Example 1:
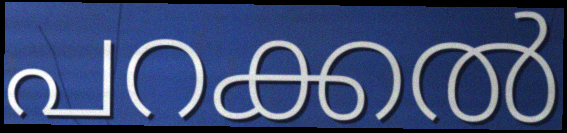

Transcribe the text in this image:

പറക്കൽ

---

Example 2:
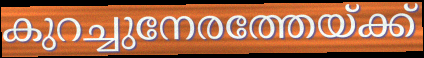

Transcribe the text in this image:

കുറച്ചുനേരത്തേയ്ക്ക്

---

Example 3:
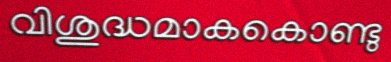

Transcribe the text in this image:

വിശുദ്ധമാകകൊണ്ടു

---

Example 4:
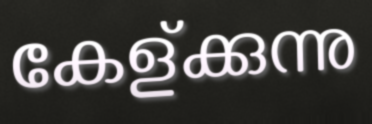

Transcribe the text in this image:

കേള്ക്കുന്നു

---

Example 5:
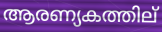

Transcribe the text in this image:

ആരണ്യകത്തില്